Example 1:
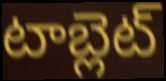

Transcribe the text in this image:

టాబ్లెట్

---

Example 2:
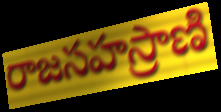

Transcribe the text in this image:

రాజసహస్రాణి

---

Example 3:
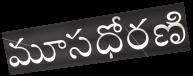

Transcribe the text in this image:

మూసధోరణి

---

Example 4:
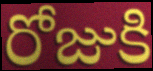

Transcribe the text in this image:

రోజుకి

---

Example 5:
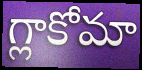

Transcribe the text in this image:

గ్లాకోమా